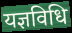
यज्ञविधि